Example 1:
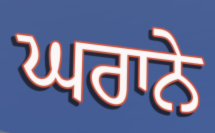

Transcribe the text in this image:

ਘਰਾਨੇ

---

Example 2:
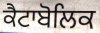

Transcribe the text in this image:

ਕੈਟਾਬੋਲਿਕ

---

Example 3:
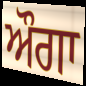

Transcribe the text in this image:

ਔਗਾ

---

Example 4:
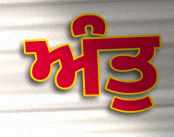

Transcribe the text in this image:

ਅੰਤੁ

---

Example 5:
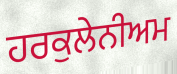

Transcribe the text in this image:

ਹਰਕੁਲੇਨੀਅਮ